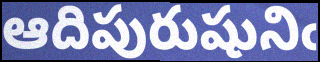
ఆదిపురుషునిఁ